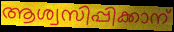
ആശ്വസിപ്പിക്കാന്